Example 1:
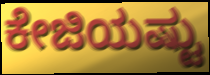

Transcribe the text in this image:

ಕೇಜಿಯಷ್ಟು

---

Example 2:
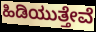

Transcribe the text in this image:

ಹಿಡಿಯುತ್ತೇವೆ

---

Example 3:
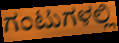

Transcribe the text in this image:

ಗಂಟುಗಳಲ್ಲಿ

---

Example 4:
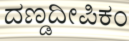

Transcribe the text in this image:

ದಣ್ಡದೀಪಿಕಂ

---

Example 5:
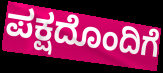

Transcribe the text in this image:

ಪಕ್ಷದೊಂದಿಗೆ